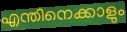
എന്തിനെക്കാളും